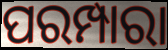
ପରମ୍ପାରା